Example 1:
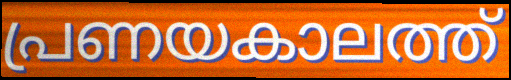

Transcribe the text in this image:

പ്രണയകാലത്ത്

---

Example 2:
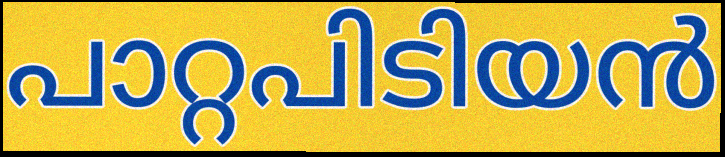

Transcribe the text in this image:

പാറ്റപിടിയൻ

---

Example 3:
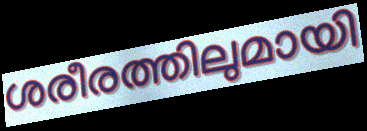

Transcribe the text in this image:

ശരീരത്തിലുമായി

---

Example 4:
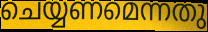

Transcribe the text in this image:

ചെയ്യണമെന്നതു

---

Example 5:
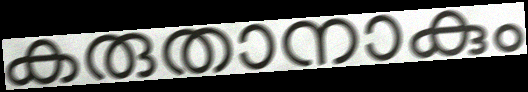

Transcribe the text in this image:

കരുതാനാകും